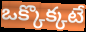
ఒక్కొక్కటే